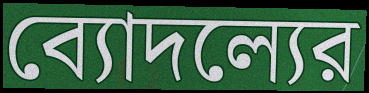
ব্যোদল্যের